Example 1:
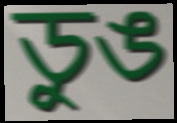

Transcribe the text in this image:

ডুঙ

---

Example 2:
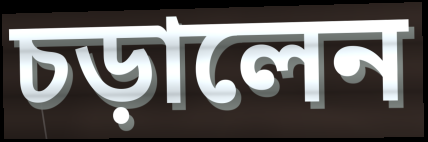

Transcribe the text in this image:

চড়ালেন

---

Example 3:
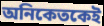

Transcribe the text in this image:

অনিকেতকেই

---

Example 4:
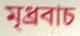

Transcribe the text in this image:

মৃধ্রবাচ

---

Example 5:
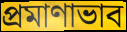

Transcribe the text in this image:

প্রমাণাভাব